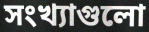
সংখ্যাগুলো